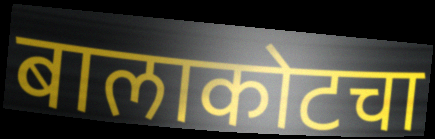
बालाकोटचा